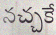
నచ్చకే